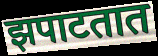
झपाटतात